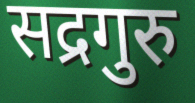
सद्रगुरु